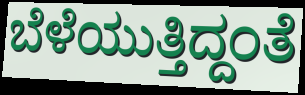
ಬೆಳೆಯುತ್ತಿದ್ದಂತೆ